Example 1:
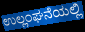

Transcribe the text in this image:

ಉಲ್ಲಂಘನೆಯಲ್ಲಿ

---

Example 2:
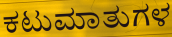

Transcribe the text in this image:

ಕಟುಮಾತುಗಳ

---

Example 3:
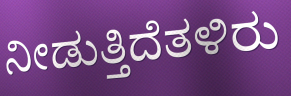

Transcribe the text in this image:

ನೀಡುತ್ತಿದೆತಳಿರು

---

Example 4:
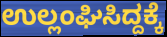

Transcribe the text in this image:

ಉಲ್ಲಂಘಿಸಿದ್ದಕ್ಕೆ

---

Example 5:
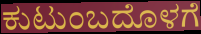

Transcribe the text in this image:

ಕುಟುಂಬದೊಳಗೆ